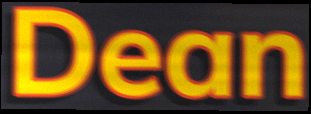
Dean